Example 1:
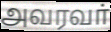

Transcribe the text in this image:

அவரவர்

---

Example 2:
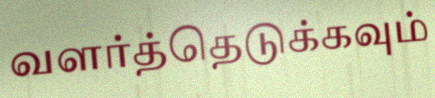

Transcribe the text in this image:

வளர்த்தெடுக்கவும்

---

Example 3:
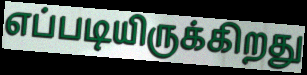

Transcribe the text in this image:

எப்படியிருக்கிறது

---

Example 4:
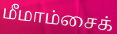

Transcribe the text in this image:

மீமாம்சைக்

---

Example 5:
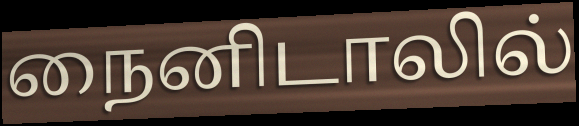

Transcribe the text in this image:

நைனிடாலில்